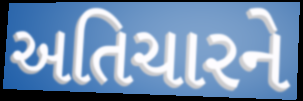
અતિચારને